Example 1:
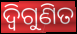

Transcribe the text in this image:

ଦ୍ଵିଗୁଣିତ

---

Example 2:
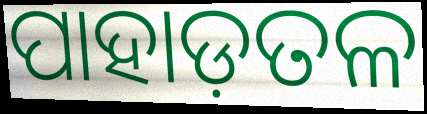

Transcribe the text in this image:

ପାହାଡ଼ତଳ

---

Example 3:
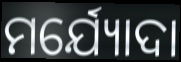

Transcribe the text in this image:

ମର୍ଯ୍ୟୋଦା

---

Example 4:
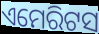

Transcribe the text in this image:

ଏମେରିଟସ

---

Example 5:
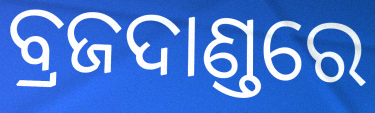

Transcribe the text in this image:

ବ୍ରଜଦାଣ୍ଡରେ